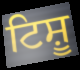
ਟਿਸ਼ੂ